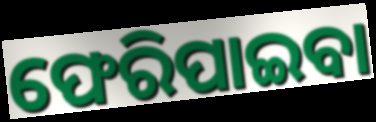
ଫେରିପାଇବା